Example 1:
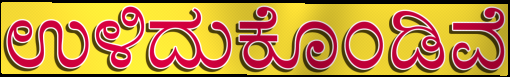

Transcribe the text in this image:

ಉಳಿದುಕೊಂಡಿವೆ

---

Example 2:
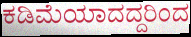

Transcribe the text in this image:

ಕಡಿಮೆಯಾದದ್ದರಿಂದ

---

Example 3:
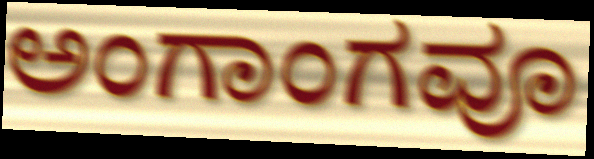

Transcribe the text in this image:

ಅಂಗಾಂಗವೂ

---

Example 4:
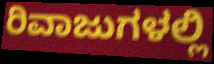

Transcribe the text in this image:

ರಿವಾಜುಗಳಲ್ಲಿ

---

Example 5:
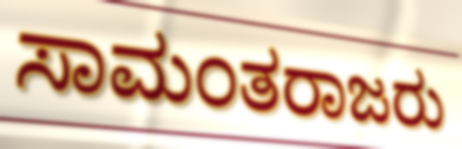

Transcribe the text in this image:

ಸಾಮಂತರಾಜರು